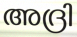
അദ്രി